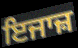
ਇਜਾਜ਼